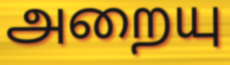
அறையு